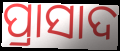
ପ୍ରାସାଦ